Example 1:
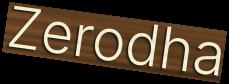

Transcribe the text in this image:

Zerodha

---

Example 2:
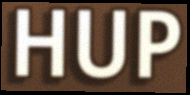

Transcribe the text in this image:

HUP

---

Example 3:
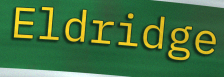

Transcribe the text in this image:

Eldridge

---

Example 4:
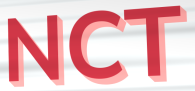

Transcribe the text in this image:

NCT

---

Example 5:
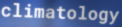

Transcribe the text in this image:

climatology